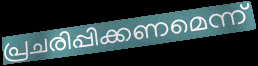
പ്രചരിപ്പിക്കണമെന്ന്